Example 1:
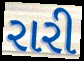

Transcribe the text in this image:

રારી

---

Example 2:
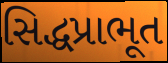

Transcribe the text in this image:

સિદ્ધપ્રાભૂત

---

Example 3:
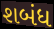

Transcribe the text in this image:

શબંધ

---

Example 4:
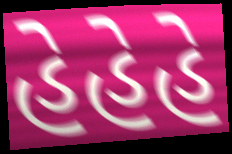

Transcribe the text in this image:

હેહેહે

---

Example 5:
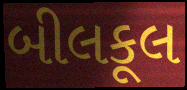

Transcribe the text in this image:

બીલકૂલ